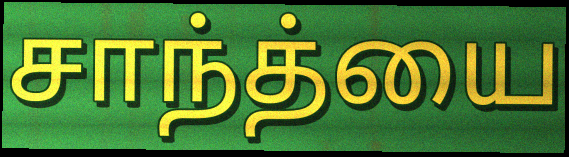
சாந்த்யை